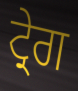
ਟ੍ਰੇਗ